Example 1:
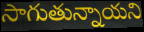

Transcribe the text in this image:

సాగుతున్నాయని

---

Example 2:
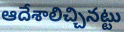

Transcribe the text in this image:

ఆదేశాలిచ్చినట్టు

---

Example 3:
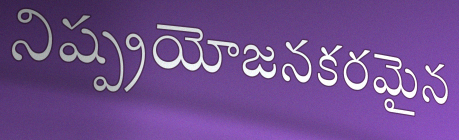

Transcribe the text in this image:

నిష్ప్రయోజనకరమైన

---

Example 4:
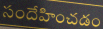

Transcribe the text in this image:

సందేహించడం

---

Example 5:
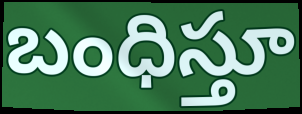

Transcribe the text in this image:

బంధిస్తూ